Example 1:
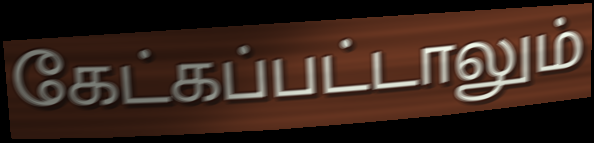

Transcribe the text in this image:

கேட்கப்பட்டாலும்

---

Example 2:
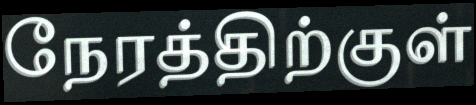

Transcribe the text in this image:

நேரத்திற்குள்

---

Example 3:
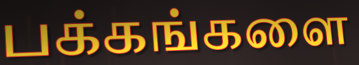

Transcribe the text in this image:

பக்கங்களை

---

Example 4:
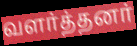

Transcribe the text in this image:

வளர்த்தனர்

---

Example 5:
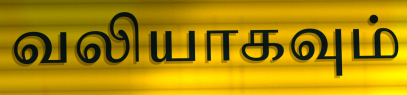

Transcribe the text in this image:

வலியாகவும்